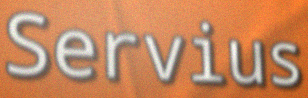
Servius